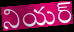
నియర్